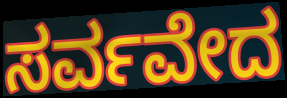
ಸರ್ವವೇದ